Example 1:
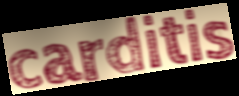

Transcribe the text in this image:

carditis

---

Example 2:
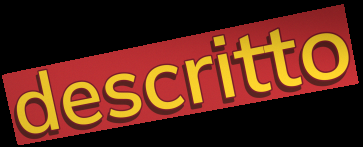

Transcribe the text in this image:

descritto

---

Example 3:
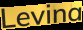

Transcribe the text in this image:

Levina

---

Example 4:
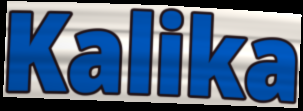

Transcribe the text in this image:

Kalika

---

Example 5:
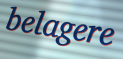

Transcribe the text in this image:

belagere